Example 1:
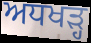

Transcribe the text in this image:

ਅਧਖੜ੍ਹ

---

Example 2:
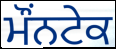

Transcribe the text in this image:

ਮੌਂਨਟੇਕ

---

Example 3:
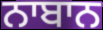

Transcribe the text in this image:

ਨਾਬਾਨ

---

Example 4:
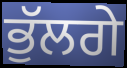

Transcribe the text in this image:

ਭੁੱਲਗੇ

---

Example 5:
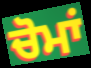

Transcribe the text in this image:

ਚੋਮਾਂ